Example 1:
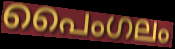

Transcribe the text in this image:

പൈംഗലം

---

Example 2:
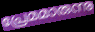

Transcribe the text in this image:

പ്രേമമാരുന്നു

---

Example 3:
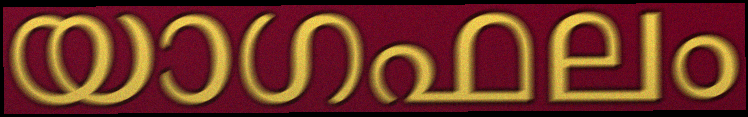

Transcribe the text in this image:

യാഗഫലം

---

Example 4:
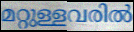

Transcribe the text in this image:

മറ്റുള്ളവരിൽ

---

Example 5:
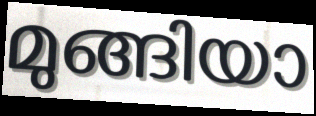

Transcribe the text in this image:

മുങ്ങിയാ